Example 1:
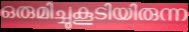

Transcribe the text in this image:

ഒരുമിച്ചുകൂടിയിരുന്ന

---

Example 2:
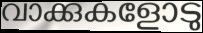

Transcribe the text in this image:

വാക്കുകളോടു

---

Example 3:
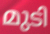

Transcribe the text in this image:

മുടി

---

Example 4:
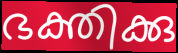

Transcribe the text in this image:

ഭക്തിക്കു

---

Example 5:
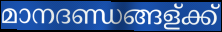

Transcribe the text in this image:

മാനദണ്ഡങ്ങള്ക്ക്